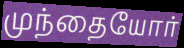
முந்தையோர்